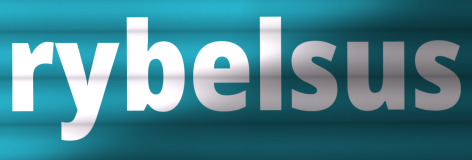
rybelsus